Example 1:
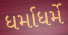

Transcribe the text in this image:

ધર્માધર્મે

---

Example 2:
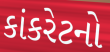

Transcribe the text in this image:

કાંકરેટનો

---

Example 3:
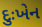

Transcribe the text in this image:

દુઃખેન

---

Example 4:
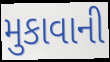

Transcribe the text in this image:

મુકાવાની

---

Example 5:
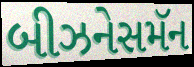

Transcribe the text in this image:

બીઝનેસમૅન